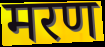
मरण